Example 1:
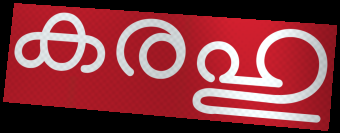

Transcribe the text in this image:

കരഹു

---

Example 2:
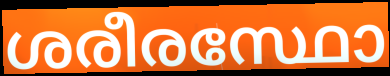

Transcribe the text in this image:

ശരീരസ്ഥോ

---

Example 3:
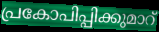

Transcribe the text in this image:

പ്രകോപിപ്പിക്കുമാറ്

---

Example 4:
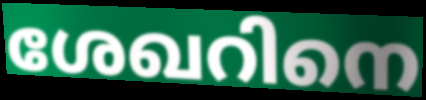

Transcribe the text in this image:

ശേഖറിനെ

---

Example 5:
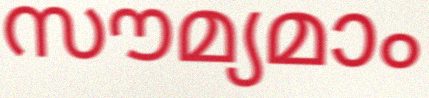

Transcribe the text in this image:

സൗമ്യമാം